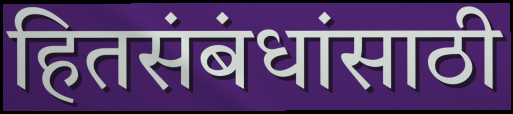
हितसंबंधांसाठी